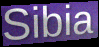
Sibia